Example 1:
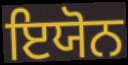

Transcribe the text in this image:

ਇਯੋਨ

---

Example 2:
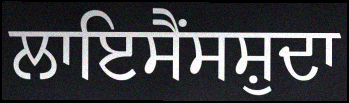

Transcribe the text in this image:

ਲਾਇਸੈਂਸਸ਼ੁਦਾ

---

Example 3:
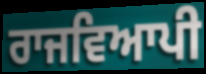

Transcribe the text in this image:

ਰਾਜਵਿਆਪੀ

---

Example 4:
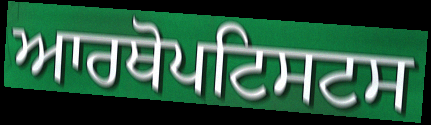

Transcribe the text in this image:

ਆਰਥੋਪਟਿਸਟਸ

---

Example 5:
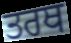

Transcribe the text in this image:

ਤਰਥ